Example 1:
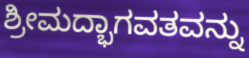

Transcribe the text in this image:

ಶ್ರೀಮದ್ಭಾಗವತವನ್ನು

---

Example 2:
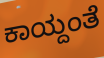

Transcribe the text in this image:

ಕಾಯ್ದಂತೆ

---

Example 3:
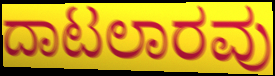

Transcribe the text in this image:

ದಾಟಲಾರವು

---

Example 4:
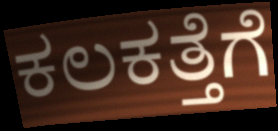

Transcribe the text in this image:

ಕಲಕತ್ತೆಗೆ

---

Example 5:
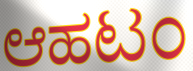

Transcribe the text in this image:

ಆಹಟಂ